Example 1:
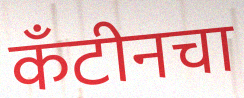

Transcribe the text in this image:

कँटीनचा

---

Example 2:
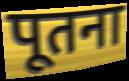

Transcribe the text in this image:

पूतना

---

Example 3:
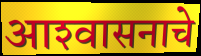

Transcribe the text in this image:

आश्वासनाचे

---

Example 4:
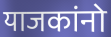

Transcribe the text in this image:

याजकांनो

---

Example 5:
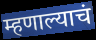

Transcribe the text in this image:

म्हणाल्याचं